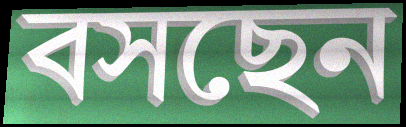
বসছেন